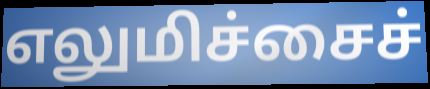
எலுமிச்சைச்